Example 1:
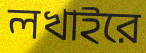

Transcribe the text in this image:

লখাইরে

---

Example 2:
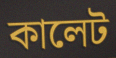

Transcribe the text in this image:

কালেট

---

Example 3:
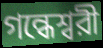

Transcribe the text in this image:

গন্ধেশ্বরী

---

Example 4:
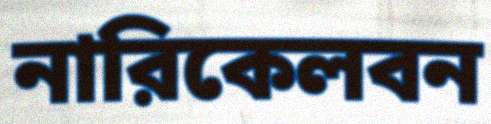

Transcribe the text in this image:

নারিকেলবন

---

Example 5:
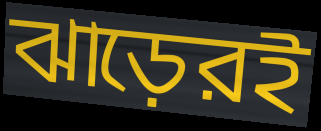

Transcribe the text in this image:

ঝাড়েরই